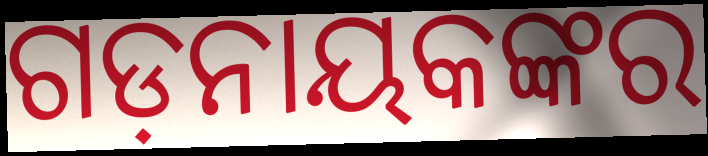
ଗଡ଼ନାୟକଙ୍କର